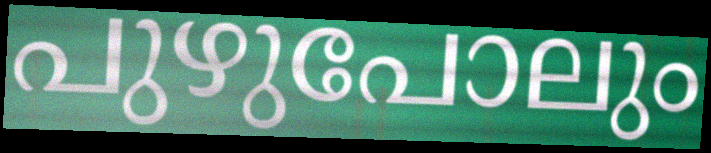
പുഴുപോലും